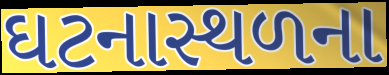
ઘટનાસ્થળના